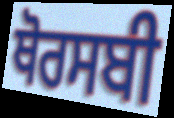
ਥੋਰਸਬੀ